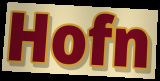
Hofn